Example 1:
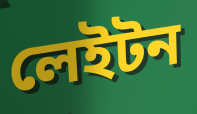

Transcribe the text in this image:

লেইটন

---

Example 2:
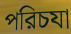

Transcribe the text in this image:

পরিচযা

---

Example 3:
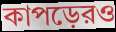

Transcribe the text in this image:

কাপড়েরও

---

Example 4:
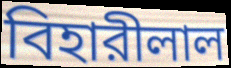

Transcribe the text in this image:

বিহারীলাল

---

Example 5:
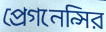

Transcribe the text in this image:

প্রেগনেন্সির